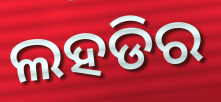
ଲହଡିର